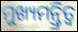
ମୁଖ୍ୟମନ୍ତ୍ରିତ୍ୱ